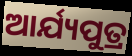
ଆର୍ଯ୍ୟପୁତ୍ର